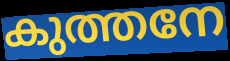
കുത്തനേ